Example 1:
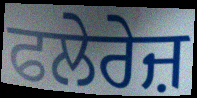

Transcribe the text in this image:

ਫਲੇਰੇਜ਼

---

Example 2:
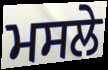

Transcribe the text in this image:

ਮਸਲੇ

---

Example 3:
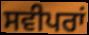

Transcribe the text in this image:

ਸਵੀਪਰਾਂ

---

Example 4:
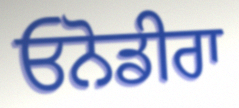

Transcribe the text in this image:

ਓਨੋਡੀਰਾ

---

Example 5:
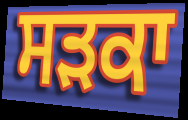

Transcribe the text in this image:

ਸੜਕਾ